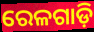
ରେଳଗାଡ଼ି